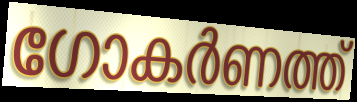
ഗോകർണത്ത്